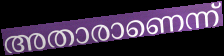
അതാരാണെന്ന്